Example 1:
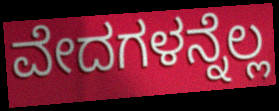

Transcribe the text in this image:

ವೇದಗಳನ್ನೆಲ್ಲ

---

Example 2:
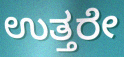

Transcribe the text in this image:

ಉತ್ತರೇ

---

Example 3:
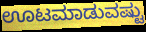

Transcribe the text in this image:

ಊಟಮಾಡುವಷ್ಟು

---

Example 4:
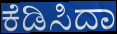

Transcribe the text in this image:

ಕೆಡಿಸಿದಾ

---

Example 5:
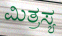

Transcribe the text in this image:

ಮಿತ್ರಸ್ಯ